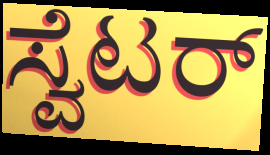
ಸ್ವೆಟರ್